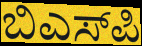
ಬಿಎಸ್‌ಪಿ